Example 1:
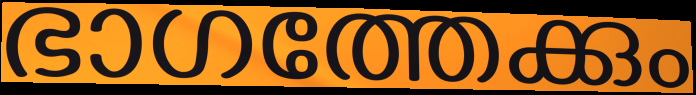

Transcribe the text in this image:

ഭാഗത്തേക്കും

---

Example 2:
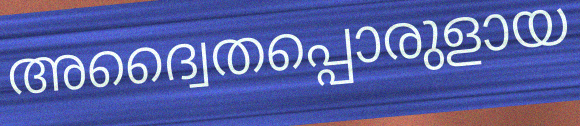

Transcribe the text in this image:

അദ്വൈതപ്പൊരുളായ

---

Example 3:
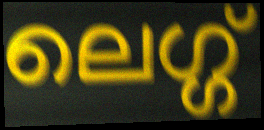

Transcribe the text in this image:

ലെഗ്ഗ്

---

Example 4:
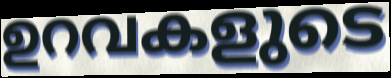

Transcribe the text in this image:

ഉറവകളുടെ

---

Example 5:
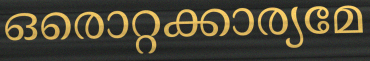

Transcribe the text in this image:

ഒരൊറ്റക്കാര്യമേ